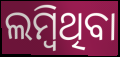
ଲମ୍ବିଥିବା